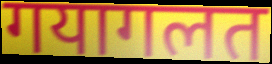
गयागलत